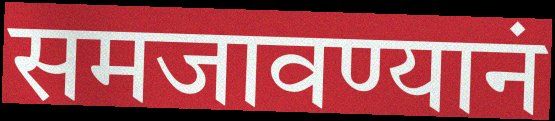
समजावण्यानं